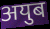
अयुब